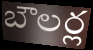
బౌలర్ల